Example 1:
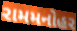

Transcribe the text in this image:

રામમનોહર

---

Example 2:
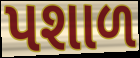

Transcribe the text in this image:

પશાળ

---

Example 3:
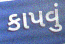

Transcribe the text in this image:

કાપવું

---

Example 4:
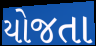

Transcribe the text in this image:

યોજતા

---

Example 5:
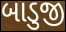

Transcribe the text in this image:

બાડુજી